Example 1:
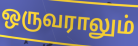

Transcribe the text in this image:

ஒருவராலும்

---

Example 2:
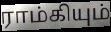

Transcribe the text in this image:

ராம்கியும்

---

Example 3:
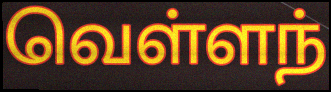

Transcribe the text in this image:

வெள்ளந்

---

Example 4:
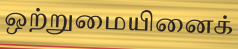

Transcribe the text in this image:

ஒற்றுமையினைக்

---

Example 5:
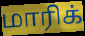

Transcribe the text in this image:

மாரிக்